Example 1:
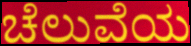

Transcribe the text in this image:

ಚೆಲುವೆಯ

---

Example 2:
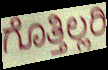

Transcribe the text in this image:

ಗೊತ್ತಿಲ್ಲರಿ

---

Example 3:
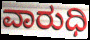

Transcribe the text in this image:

ವಾರುಧಿ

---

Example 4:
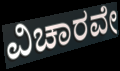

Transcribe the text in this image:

ವಿಚಾರವೇ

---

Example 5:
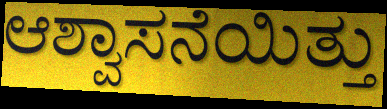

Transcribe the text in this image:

ಆಶ್ವಾಸನೆಯಿತ್ತು